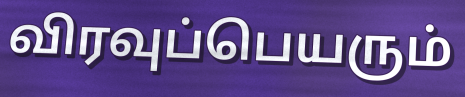
விரவுப்பெயரும்